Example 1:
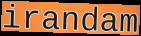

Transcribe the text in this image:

irandam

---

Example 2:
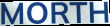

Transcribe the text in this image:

MORTH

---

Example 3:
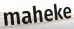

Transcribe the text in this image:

maheke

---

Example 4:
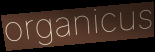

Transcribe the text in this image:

organicus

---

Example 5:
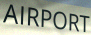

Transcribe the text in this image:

AIRPORT